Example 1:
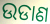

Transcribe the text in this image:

ଉଡାଣ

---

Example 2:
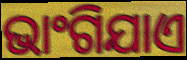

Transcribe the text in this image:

ଭାଂଗିଯାଏ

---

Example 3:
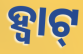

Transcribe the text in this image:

ହ୍ବାଟ୍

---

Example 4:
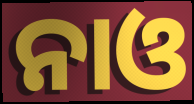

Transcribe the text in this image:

ନାଓ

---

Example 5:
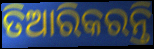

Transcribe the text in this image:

ତିଆରିକରନ୍ତି